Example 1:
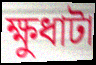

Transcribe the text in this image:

ক্ষুধাটা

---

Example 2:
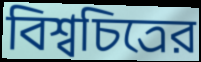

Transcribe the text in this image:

বিশ্বচিত্রের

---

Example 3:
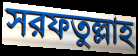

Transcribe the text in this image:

সরফতুল্লাহ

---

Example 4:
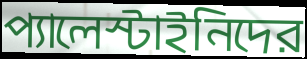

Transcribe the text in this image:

প্যালেস্টাইনিদের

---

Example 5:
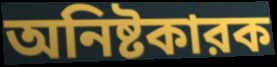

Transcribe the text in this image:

অনিষ্টকারক